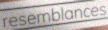
resemblances